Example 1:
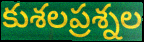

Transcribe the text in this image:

కుశలప్రశ్నల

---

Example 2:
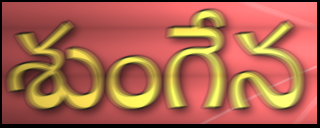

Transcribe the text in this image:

శుంగేన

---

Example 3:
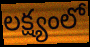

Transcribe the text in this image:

లక్ష్యంలో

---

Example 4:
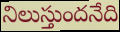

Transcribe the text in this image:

నిలుస్తుందనేది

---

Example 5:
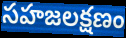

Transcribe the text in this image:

సహజలక్షణం